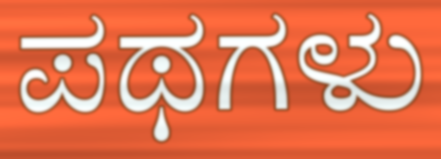
ಪಥಗಳು